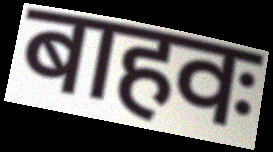
बाहवः